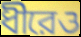
ধীরেও